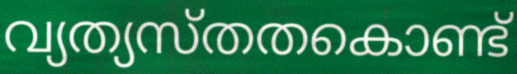
വ്യത്യസ്തതകൊണ്ട്